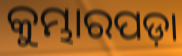
କୁମ୍ଭାରପଡ଼ା